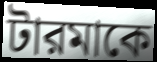
টারমাকে